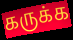
கருக்க